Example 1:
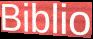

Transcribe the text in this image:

Biblio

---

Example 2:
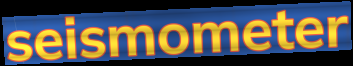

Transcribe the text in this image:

seismometer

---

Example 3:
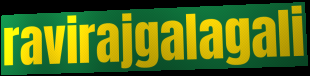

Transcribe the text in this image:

ravirajgalagali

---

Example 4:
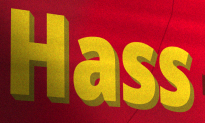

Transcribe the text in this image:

Hass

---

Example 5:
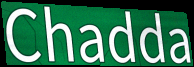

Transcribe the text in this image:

Chadda